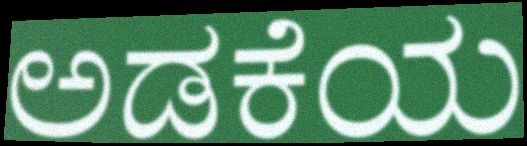
ಅಡಕೆಯ